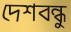
দেশবন্ধু